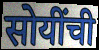
सोयींची